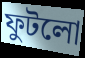
ফুটলো